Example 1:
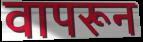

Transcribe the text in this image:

वापरून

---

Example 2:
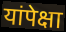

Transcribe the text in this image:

यांपेक्षा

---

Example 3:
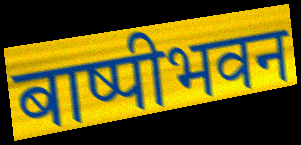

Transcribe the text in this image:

बाष्पीभवन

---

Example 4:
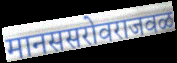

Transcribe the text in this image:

मानससरोवराजवळ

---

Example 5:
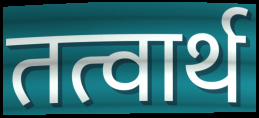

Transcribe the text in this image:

तत्वार्थ